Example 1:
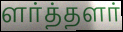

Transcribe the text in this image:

ளர்த்தளர்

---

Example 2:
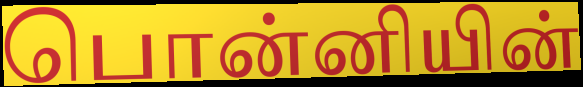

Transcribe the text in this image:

பொன்னியின்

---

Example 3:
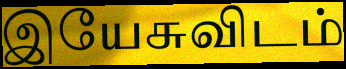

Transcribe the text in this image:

இயேசுவிடம்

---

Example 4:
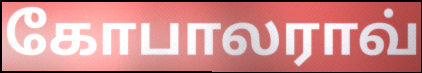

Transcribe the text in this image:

கோபாலராவ்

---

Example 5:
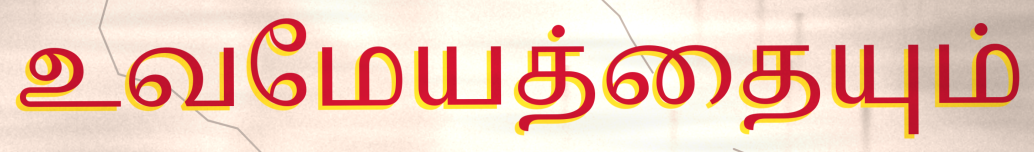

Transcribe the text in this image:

உவமேயத்தையும்